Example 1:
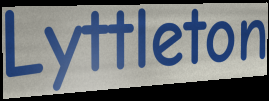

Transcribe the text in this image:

Lyttleton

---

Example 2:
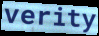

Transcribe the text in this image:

verity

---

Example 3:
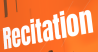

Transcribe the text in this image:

Recitation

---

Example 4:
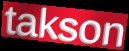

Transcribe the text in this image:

takson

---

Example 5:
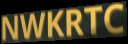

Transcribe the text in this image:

NWKRTC